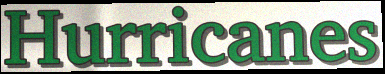
Hurricanes